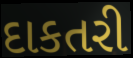
દાકતરી